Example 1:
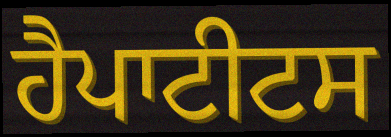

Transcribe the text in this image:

ਹੈਪਾਟੀਟਸ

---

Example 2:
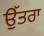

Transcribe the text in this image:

ਉੱਤਰਾ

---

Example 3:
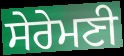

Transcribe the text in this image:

ਸੇਰੇਮਣੀ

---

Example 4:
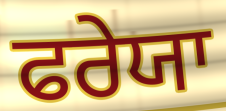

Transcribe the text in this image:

ਫਰੇਯਾ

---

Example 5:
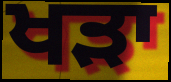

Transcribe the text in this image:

ਖਡ਼ਾ